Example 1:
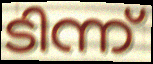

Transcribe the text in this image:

ടിന്ന്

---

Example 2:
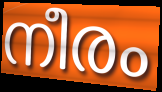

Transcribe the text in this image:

നീരം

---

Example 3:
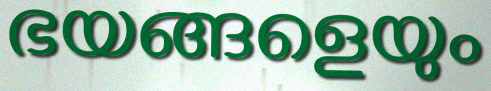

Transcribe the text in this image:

ഭയങ്ങളെയും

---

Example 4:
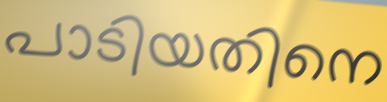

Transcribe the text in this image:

പാടിയതിനെ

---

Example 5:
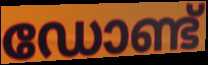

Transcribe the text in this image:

ഡോണ്ട്